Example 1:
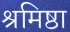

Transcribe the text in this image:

श्रमिष्ठा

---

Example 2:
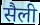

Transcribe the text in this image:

सैली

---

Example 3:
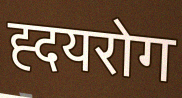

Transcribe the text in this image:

ह्दयरोग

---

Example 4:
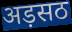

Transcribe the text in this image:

अड़सठ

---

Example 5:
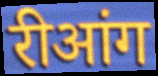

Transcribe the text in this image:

रीआंग